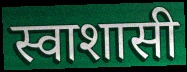
स्वाशासी